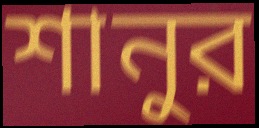
শানুর